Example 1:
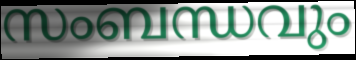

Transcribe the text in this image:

സംബന്ധവും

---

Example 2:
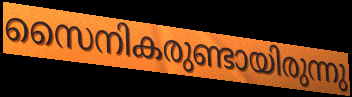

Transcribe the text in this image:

സൈനികരുണ്ടായിരുന്നു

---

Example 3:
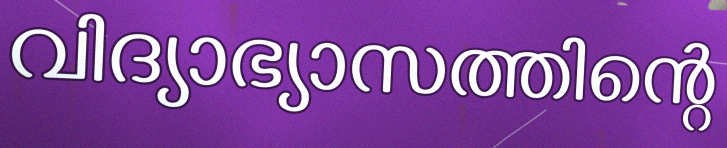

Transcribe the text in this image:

വിദ്യാഭ്യാസത്തിന്റെ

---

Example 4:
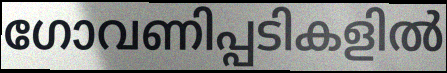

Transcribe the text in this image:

ഗോവണിപ്പടികളിൽ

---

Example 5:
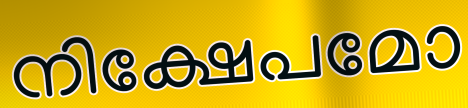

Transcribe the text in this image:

നിക്ഷേപമോ